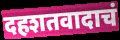
दहशतवादाचं